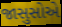
જાસુસોએ